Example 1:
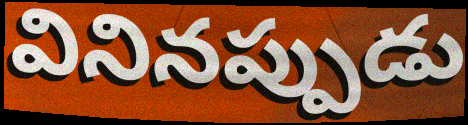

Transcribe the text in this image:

వినినప్పుడు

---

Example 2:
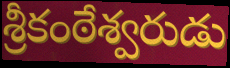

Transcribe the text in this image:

శ్రీకంఠేశ్వరుడు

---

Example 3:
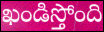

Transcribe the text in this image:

ఖండిస్తోంది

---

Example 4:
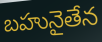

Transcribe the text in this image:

బహునైతేన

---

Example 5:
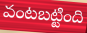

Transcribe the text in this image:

వంటబట్టింది